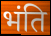
भंति